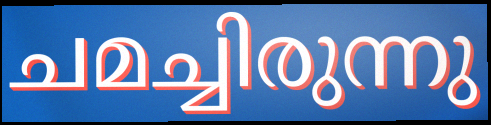
ചമച്ചിരുന്നു